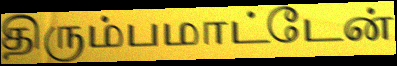
திரும்பமாட்டேன்